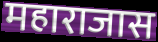
महाराजास